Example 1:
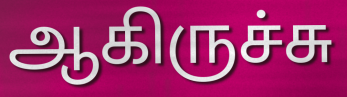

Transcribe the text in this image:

ஆகிருச்சு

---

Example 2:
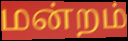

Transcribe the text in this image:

மன்றம்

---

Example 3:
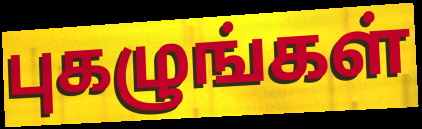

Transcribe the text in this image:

புகழுங்கள்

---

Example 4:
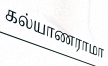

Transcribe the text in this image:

கல்யாணராமா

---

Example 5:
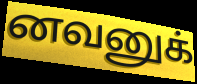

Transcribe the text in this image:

னவனுக்